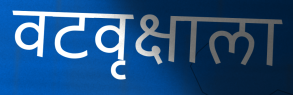
वटवृक्षाला